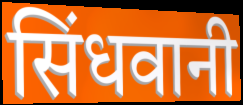
सिंधवानी